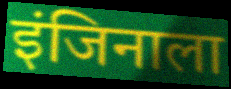
इंजिनाला